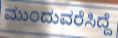
ಮುಂದುವರೆಸಿದ್ದೆ